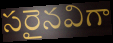
సరైనవిగా